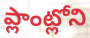
ప్లాంట్లోని